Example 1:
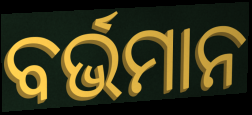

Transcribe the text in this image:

ବର୍ଭମାନ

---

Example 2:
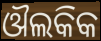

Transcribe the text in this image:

ଔଲକିକ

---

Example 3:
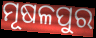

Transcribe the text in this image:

ମୂଷଳପୁର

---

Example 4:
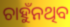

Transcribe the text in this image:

ଚାହୁଁନଥିବ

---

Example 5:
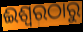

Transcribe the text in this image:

ଈଶ୍ୱରଠାରୁ